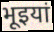
भूइयां